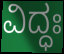
ವಿದ್ಧಃ